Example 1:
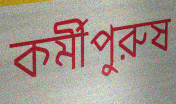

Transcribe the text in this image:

কর্মীপুরুষ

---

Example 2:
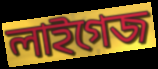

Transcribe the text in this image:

লাইগেজ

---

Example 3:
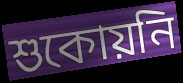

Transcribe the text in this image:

শুকোয়নি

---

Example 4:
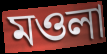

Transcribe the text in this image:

মওলা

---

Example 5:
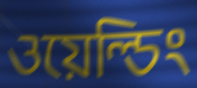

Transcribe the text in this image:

ওয়েল্ডিং